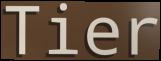
Tier